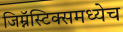
जिम्नॅस्टिक्समध्येच